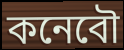
কনেবৌ